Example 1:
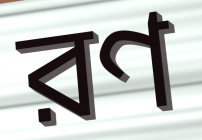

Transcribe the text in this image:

রণ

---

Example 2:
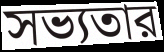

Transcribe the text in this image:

সভ্যতার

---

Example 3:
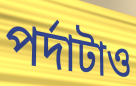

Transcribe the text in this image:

পর্দাটাও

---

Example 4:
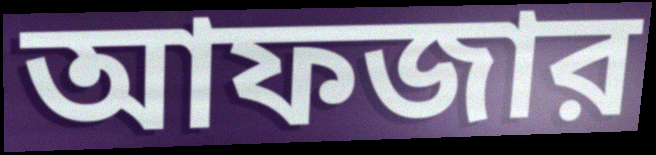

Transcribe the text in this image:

আফজার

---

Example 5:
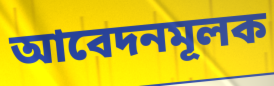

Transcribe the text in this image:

আবেদনমূলক